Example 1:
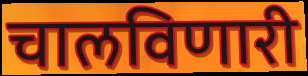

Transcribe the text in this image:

चालविणारी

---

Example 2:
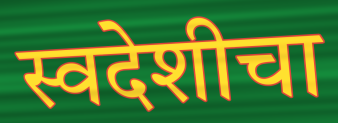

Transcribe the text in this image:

स्वदेशीचा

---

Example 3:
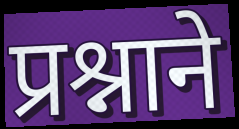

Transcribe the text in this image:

प्रश्नाने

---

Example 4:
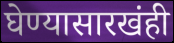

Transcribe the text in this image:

घेण्यासारखंही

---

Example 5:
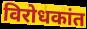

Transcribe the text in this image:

विरोधकांत